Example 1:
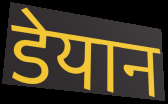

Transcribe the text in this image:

डेयान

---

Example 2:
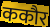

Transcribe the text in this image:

ककौर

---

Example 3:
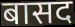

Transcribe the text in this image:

बासद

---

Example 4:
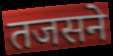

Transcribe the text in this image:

तजसने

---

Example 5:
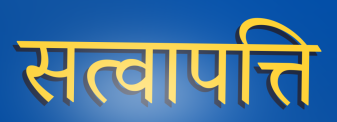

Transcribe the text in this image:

सत्वापत्ति